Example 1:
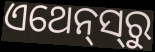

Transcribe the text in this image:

ଏଥେନ୍‌ସ୍‌ରୁ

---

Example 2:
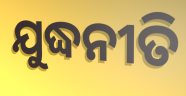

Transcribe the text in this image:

ଯୁଦ୍ଧନୀତି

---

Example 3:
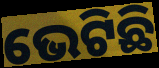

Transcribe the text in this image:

ଭେଟିଛି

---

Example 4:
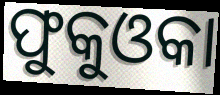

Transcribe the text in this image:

ଫୁକୁଓକା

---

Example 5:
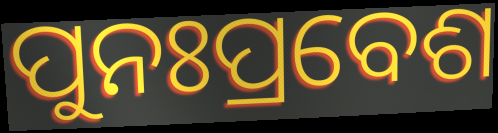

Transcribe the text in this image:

ପୁନଃପ୍ରବେଶ